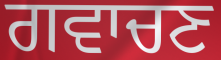
ਗਵਾਚਣ